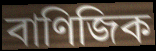
বাণিজিক